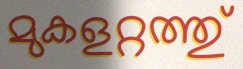
മുകളറ്റത്തു്